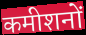
कमीशनों